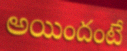
అయిందంటే